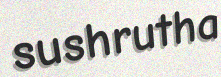
sushrutha